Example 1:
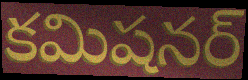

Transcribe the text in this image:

కమిషనర్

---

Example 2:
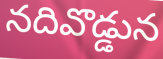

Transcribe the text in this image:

నదివొడ్డున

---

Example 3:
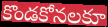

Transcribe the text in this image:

కొండకోనలకూ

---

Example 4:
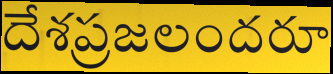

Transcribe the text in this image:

దేశప్రజలందరూ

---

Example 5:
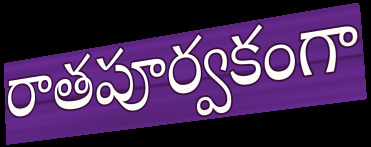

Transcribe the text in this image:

రాతపూర్వకంగా